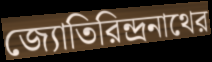
জ্যোতিরিন্দ্রনাথের